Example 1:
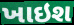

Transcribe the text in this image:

ખાઇશ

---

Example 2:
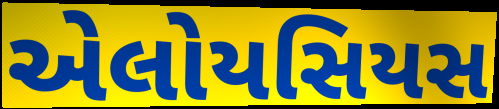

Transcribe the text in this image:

એલોયસિયસ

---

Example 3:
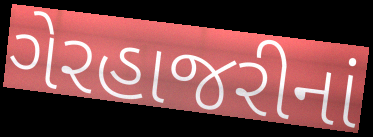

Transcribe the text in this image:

ગેરહાજરીનાં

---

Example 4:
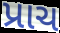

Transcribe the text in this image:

પ્રાચ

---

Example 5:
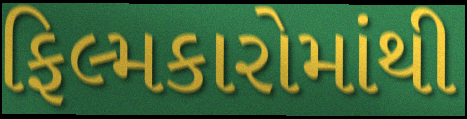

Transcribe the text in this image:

ફિલ્મકારોમાંથી